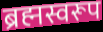
ब्रह्मस्वरूप